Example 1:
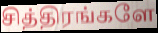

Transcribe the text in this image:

சித்திரங்களே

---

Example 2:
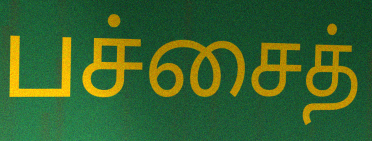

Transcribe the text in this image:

பச்சைத்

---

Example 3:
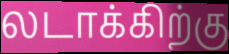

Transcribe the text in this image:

லடாக்கிற்கு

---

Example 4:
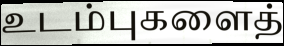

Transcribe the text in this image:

உடம்புகளைத்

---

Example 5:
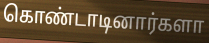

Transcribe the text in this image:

கொண்டாடினார்களா